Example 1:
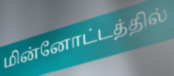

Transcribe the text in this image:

மின்னோட்டத்தில்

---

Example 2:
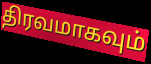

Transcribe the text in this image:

திரவமாகவும்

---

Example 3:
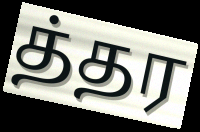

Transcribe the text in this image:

த்தர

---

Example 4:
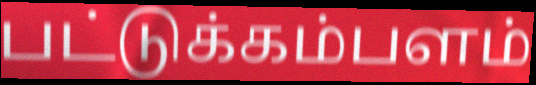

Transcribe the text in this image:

பட்டுக்கம்பளம்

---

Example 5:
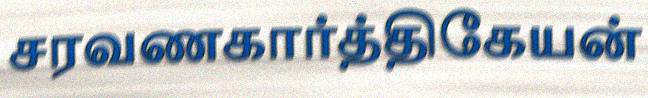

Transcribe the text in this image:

சரவணகார்த்திகேயன்